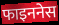
फाइननेस